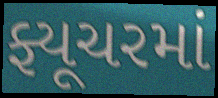
ફ્યૂચરમાં